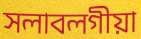
সলাবলগীয়া